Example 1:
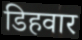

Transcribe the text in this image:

डिहवार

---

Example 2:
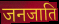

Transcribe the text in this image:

जनजाति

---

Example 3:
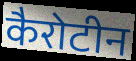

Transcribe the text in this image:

कैरोटीन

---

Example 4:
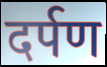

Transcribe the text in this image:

दर्पण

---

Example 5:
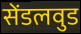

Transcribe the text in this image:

सेंडलवुड